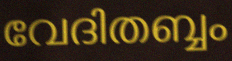
വേദിതബ്ബം